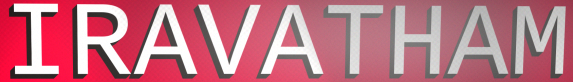
IRAVATHAM